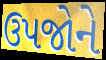
ઉપજોને